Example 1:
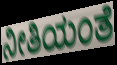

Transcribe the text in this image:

ನೀತಿಯಂತೆ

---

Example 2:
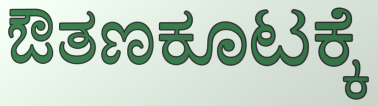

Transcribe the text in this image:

ಔತಣಕೂಟಕ್ಕೆ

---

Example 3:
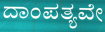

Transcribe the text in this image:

ದಾಂಪತ್ಯವೇ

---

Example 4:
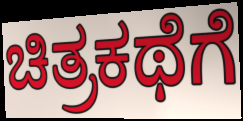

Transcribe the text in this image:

ಚಿತ್ರಕಥೆಗೆ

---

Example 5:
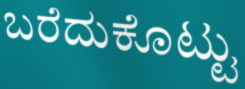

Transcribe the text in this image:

ಬರೆದುಕೊಟ್ಟು